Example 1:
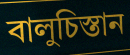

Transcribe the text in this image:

বালুচিস্তান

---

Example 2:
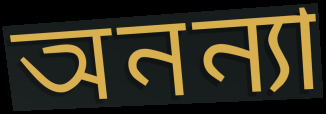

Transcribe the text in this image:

অনন্যা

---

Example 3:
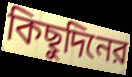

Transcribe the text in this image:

কিছুদিনের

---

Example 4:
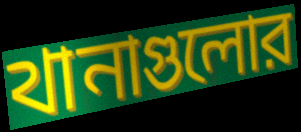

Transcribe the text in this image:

থানাগুলোর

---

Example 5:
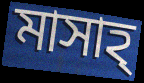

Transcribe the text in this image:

মাসাহ্